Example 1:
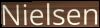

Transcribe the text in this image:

Nielsen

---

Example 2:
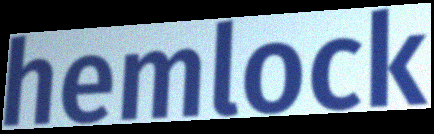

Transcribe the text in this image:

hemlock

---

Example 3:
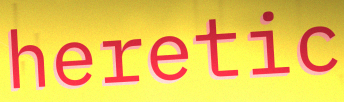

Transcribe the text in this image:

heretic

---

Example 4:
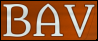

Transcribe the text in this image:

BAV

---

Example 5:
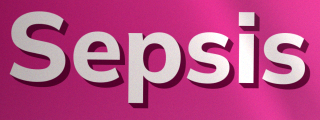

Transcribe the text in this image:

Sepsis